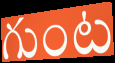
గుంట